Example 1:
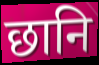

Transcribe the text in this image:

छानि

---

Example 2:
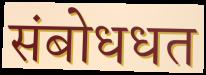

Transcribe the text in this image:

संबोधधत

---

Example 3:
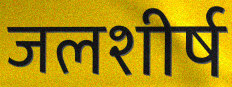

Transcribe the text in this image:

जलशीर्ष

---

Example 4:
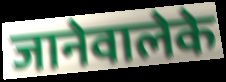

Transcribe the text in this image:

जानेवालेके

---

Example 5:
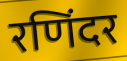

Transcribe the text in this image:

रणिंदर